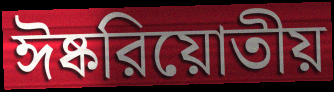
ঈষ্করিয়োতীয়